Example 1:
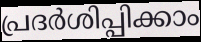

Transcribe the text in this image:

പ്രദർശിപ്പിക്കാം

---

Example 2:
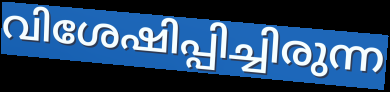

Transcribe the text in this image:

വിശേഷിപ്പിച്ചിരുന്ന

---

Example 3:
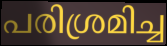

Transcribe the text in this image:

പരിശ്രമിച്ച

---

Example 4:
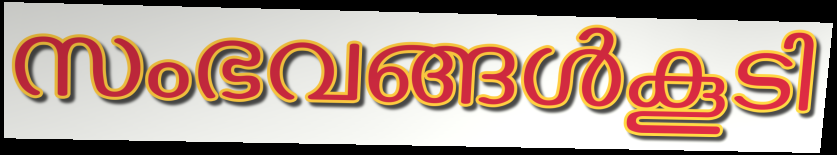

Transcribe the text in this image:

സംഭവങ്ങൾകൂടി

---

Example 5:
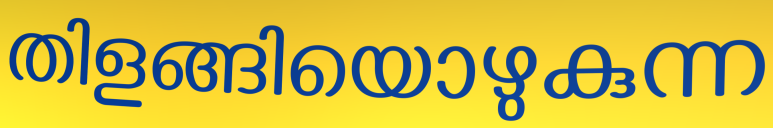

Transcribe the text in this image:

തിളങ്ങിയൊഴുകുന്ന